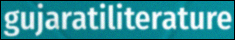
gujaratiliterature